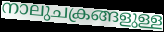
നാലുചക്രങ്ങളുള്ള